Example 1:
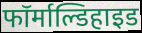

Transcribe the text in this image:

फॉर्माल्डिहाइड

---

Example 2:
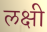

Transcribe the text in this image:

लक्षी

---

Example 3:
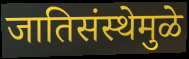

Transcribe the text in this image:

जातिसंस्थेमुळे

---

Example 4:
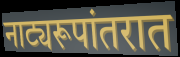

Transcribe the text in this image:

नाट्यरूपांतरात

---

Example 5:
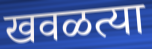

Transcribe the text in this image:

खवळत्या